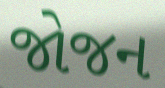
જોજન